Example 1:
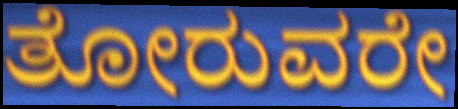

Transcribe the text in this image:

ತೋರುವರೇ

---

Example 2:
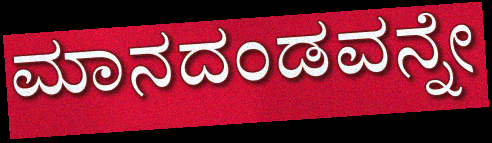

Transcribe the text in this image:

ಮಾನದಂಡವನ್ನೇ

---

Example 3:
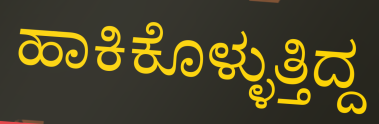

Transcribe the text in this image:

ಹಾಕಿಕೊಳ್ಳುತ್ತಿದ್ದ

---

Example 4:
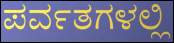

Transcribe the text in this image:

ಪರ್ವತಗಳಲ್ಲಿ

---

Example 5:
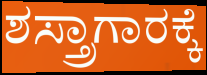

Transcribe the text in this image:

ಶಸ್ತ್ರಾಗಾರಕ್ಕೆ